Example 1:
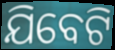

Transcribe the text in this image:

ଯିବେଟି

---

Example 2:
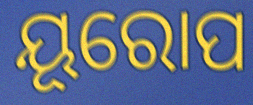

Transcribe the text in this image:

ୟୂରୋପ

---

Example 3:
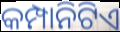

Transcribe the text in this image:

କମ୍ପାନିଟିଏ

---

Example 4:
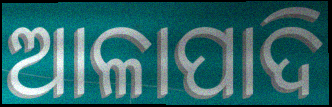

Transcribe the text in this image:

ଆଳାପାଦି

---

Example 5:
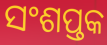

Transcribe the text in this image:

ସଂଶପ୍ତକ